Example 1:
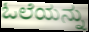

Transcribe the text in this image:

ಓಲೆಯನ್ನು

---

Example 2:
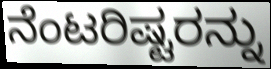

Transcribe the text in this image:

ನೆಂಟರಿಷ್ಟರನ್ನು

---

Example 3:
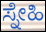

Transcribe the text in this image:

ಸ್ನೇಹಿ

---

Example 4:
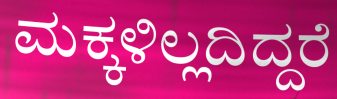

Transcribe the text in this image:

ಮಕ್ಕಳಿಲ್ಲದಿದ್ದರೆ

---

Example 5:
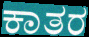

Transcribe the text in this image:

ಕಾತರ